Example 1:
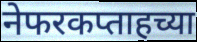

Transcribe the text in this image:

नेफरकप्ताहच्या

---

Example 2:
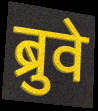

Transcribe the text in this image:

ब्रुवे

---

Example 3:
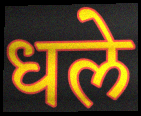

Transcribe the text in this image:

धले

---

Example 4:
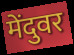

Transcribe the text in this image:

मेंदुवर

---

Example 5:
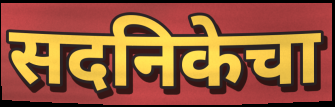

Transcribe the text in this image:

सदनिकेचा